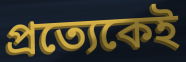
প্রত্যেকেই